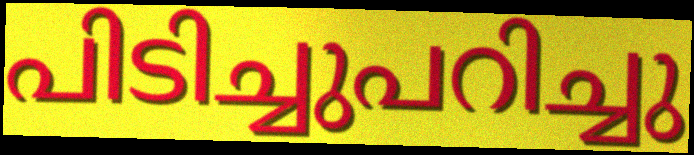
പിടിച്ചുപറിച്ചു